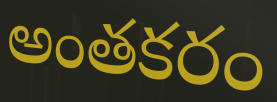
అంతకరం